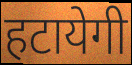
हटायेगी